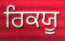
ਰਿਕਯੂ